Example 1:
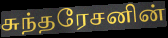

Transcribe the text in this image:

சுந்தரேசனின்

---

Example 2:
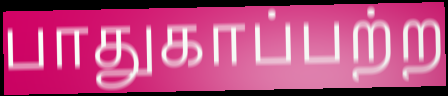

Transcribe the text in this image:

பாதுகாப்பற்ற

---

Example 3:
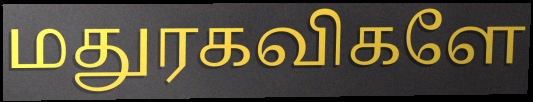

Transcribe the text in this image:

மதுரகவிகளே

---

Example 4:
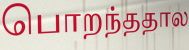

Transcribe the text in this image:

பொறந்ததால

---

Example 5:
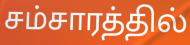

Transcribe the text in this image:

சம்சாரத்தில்